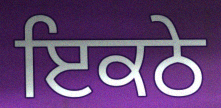
ਇਕਠੇ